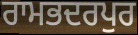
ਰਾਮਭਦਰਪੁਰ